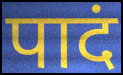
पादं